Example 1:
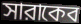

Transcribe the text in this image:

সারাকেব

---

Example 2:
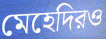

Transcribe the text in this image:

মেহেদিরও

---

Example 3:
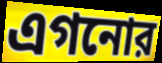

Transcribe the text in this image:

এগনোর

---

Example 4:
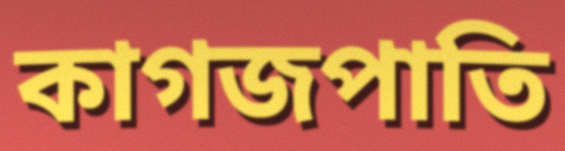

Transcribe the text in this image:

কাগজপাতি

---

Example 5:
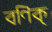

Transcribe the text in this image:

বণিক্